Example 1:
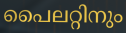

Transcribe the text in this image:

പൈലറ്റിനും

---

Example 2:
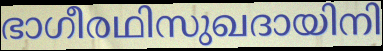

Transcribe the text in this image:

ഭാഗീരഥിസുഖദായിനി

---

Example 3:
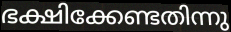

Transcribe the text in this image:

ഭക്ഷിക്കേണ്ടതിന്നു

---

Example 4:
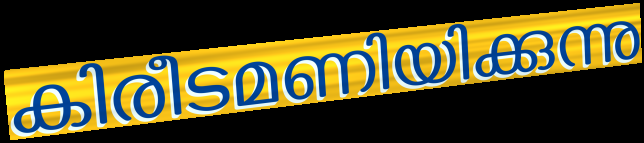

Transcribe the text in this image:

കിരീടമണിയിക്കുന്നു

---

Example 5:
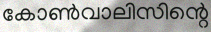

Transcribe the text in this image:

കോൺവാലിസിന്റെ